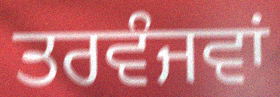
ਤਰਵੰਜਵਾਂ